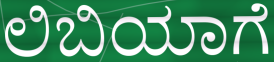
ಲಿಬಿಯಾಗೆ